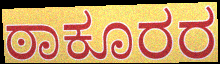
ಠಾಕೂರರ